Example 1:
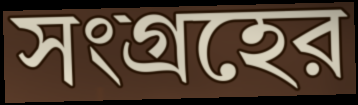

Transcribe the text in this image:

সংগ্রহের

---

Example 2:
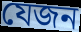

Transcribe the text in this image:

যেজন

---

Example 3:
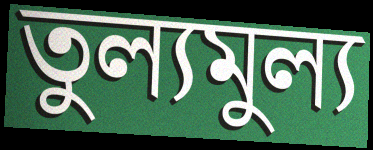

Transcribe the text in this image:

তুল্যমুল্য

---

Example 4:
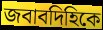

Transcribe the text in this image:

জবাবদিহিকে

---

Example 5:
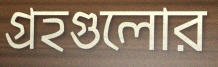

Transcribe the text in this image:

গ্রহগুলোর